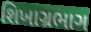
શિખાગ્રભાગ